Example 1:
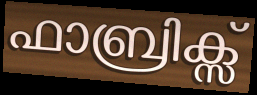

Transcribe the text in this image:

ഫാബ്രിക്സ്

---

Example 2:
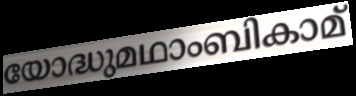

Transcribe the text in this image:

യോദ്ധുമഥാംബികാമ്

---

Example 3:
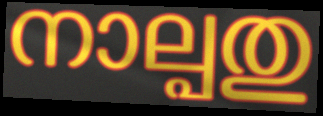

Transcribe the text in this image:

നാല്പതു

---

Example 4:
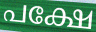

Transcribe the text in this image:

പക്ഷേ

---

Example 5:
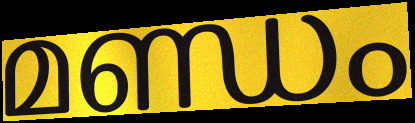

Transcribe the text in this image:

മണ്ഡം